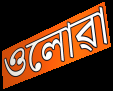
ওলোৱা